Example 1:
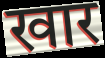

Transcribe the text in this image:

खार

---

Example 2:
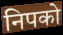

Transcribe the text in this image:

निपको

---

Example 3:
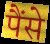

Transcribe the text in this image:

पैंसे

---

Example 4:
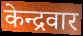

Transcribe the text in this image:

केन्द्रवार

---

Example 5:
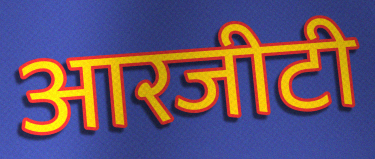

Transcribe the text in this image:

आरजीटी